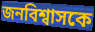
জনবিশ্বাসকে